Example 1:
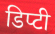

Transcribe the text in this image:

डिप्टी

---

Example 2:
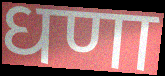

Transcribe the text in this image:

धणा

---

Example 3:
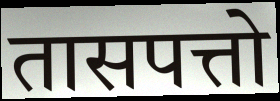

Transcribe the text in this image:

तासपत्तो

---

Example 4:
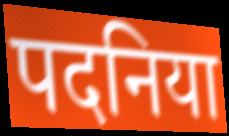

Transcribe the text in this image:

पदनिया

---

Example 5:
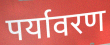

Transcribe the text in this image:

पर्यावरण